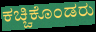
ಕಚ್ಚಿಕೊಂಡರು